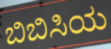
ಬಿಬಿಸಿಯ